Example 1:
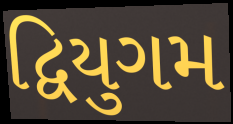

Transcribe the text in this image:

દ્વિયુગમ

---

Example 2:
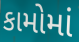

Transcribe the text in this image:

કામોમાં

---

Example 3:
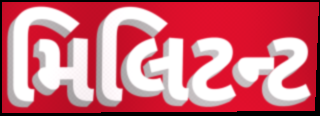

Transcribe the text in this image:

મિલિટન્ટ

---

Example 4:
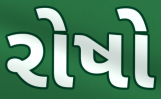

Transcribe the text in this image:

રોષો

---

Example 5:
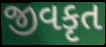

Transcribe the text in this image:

જીવકૃત